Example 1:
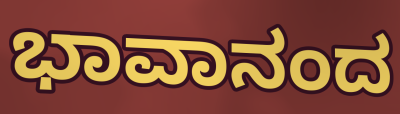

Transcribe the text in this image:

ಭಾವಾನಂದ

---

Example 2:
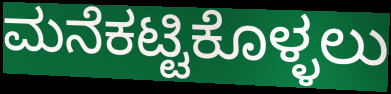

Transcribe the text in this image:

ಮನೆಕಟ್ಟಿಕೊಳ್ಳಲು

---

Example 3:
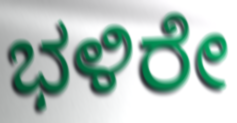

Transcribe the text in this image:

ಭಳಿರೇ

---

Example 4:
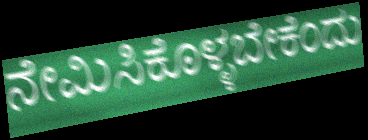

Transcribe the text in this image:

ನೇಮಿಸಿಕೊಳ್ಳಬೇಕೆಂದು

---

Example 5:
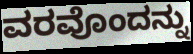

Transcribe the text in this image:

ವರವೊಂದನ್ನು